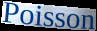
Poisson